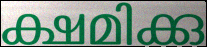
ക്ഷമിക്കു